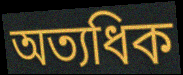
অত্যধিক